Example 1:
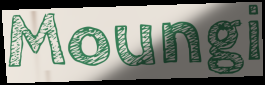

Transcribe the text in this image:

Moungi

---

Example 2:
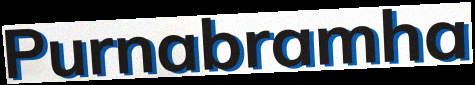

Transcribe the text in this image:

Purnabramha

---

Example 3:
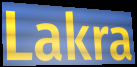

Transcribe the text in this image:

Lakra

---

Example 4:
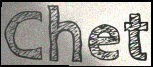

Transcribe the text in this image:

Chet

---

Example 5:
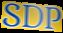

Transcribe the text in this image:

SDP